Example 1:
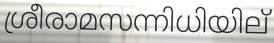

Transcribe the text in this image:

ശ്രീരാമസന്നിധിയില്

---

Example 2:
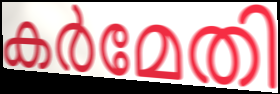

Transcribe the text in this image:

കർമേതി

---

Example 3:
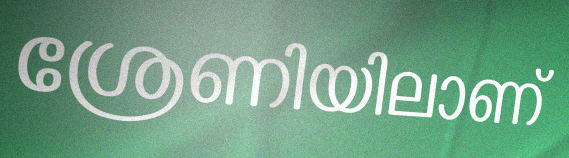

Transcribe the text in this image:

ശ്രേണിയിലാണ്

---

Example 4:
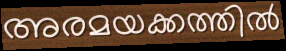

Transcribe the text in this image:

അരമയക്കത്തിൽ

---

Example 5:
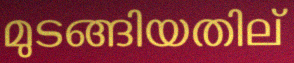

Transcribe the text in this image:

മുടങ്ങിയതില്